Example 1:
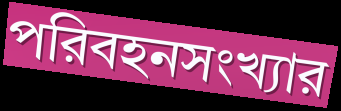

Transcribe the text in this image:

পরিবহনসংখ্যার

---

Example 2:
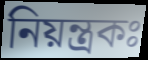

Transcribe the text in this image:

নিয়ন্ত্রকঃ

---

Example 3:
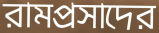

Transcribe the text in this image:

রামপ্রসাদের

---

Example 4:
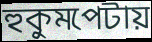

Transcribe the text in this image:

হুকুমপেটায়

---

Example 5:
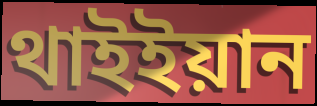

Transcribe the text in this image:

থাইইয়ান